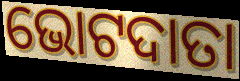
ଭୋଟଦାତା